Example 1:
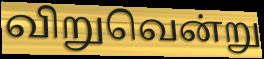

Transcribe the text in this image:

விறுவென்று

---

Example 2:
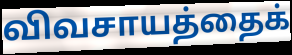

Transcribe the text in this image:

விவசாயத்தைக்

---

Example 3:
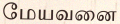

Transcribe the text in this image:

மேயவனை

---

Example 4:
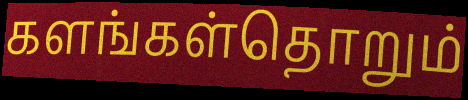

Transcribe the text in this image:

களங்கள்தொறும்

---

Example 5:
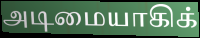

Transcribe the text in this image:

அடிமையாகிக்